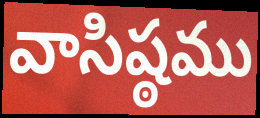
వాసిష్ఠము